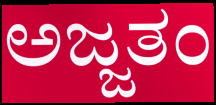
ಅಜ್ಜತಂ